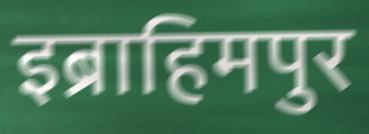
इब्राहिमपुर